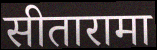
सीतारामा